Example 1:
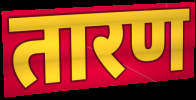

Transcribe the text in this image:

तारण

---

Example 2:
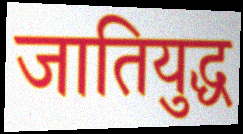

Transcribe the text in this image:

जातियुद्ध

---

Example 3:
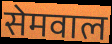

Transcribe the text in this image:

सेमवाल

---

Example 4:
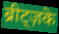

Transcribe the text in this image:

ब्रीट्ज़के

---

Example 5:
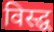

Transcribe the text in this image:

विस्द्ध